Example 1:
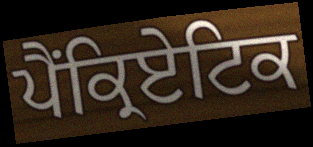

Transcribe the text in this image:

ਪੈਂਕ੍ਰਿਏਟਿਕ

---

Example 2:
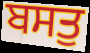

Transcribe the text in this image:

ਬਸਤੁ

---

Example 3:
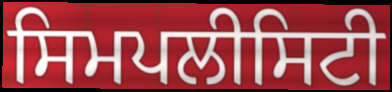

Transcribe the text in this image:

ਸਿਮਪਲੀਸਿਟੀ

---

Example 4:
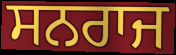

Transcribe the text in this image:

ਸਨਰਾਜ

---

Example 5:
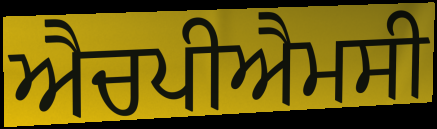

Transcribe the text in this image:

ਐਚਪੀਐਮਸੀ